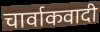
चार्वाकवादी